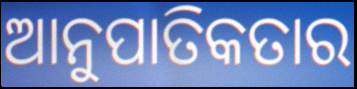
ଆନୁପାତିକତାର